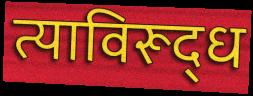
त्याविरूद्ध